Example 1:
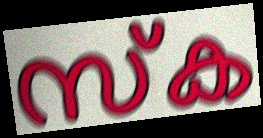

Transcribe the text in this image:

സ്ക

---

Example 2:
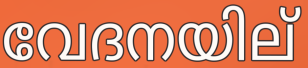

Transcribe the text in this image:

വേദനയില്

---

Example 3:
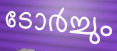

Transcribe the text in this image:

ടോർച്ചും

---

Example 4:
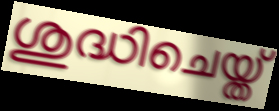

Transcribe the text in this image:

ശുദ്ധിചെയ്ത്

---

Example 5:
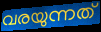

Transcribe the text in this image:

വരയുന്നത്